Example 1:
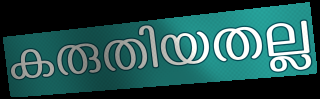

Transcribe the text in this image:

കരുതിയതല്ല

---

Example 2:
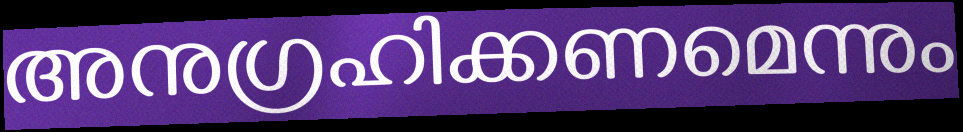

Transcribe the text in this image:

അനുഗ്രഹിക്കണമെന്നും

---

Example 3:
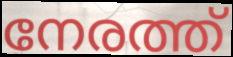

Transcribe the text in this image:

നേരത്ത്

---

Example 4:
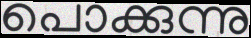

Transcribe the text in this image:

പൊക്കുന്നു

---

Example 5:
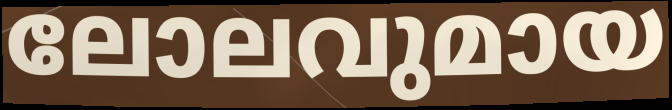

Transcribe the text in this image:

ലോലവുമായ